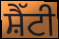
ਸ਼ੈੱਟੀ